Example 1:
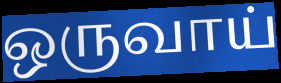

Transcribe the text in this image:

ஒருவாய்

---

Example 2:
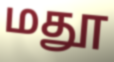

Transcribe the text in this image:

மதூ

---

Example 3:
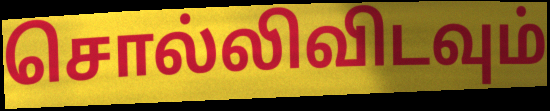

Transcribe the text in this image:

சொல்லிவிடவும்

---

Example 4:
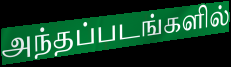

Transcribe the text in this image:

அந்தப்படங்களில்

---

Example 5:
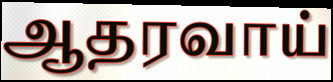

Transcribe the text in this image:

ஆதரவாய்